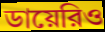
ডায়েরিও